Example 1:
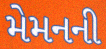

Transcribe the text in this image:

મેમનની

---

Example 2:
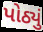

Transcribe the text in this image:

પોઠ્યું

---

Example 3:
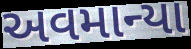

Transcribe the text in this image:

અવમાન્યા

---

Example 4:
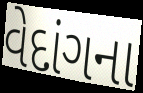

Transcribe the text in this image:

વેદાંગના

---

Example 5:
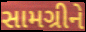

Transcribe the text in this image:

સામગ્રીને